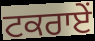
ਟਕਰਾਏਂ